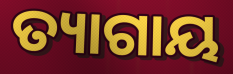
ତ୍ୟାଗାୟ